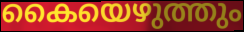
കൈയെഴുത്തും